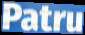
Patru